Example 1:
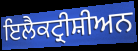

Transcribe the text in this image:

ਇਲੈਕਟ੍ਰੀਸ਼ੀਅਨ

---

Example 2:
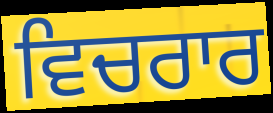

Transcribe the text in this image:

ਵਿਚਰਾਰ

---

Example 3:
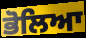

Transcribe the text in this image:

ਭੋਲਿਆ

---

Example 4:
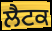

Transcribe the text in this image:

ਲੈਟਕ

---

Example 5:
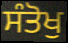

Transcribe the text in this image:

ਸੰਤੋਖੁ